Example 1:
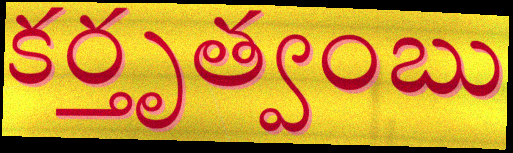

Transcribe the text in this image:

కర్తృత్వంబు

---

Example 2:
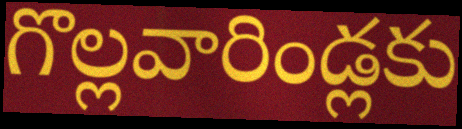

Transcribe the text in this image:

గొల్లవారిండ్లకు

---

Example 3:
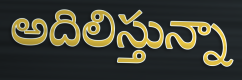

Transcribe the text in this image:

అదిలిస్తున్నా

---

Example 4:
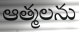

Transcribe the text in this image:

ఆత్మలను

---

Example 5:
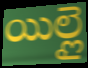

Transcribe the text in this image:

యిల్లై